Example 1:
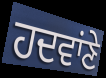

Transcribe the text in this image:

ਹਦਵਾਂਣੇ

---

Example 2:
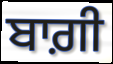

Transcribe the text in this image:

ਬਾਗ਼ੀ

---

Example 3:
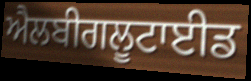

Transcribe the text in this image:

ਐਲਬੀਗਲੂਟਾਈਡ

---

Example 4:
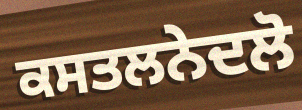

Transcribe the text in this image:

ਕਸਤਲਨੇਦਲੋ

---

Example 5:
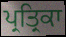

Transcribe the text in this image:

ਪ੍ਰਤ੍ਰਿਕਾ